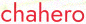
chahero